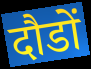
दौडों